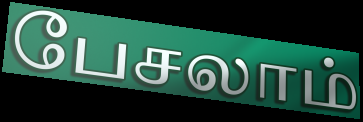
பேசலாம்